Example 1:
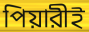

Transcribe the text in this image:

পিয়ারীই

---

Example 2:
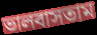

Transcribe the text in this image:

ভালবাসতাম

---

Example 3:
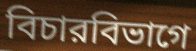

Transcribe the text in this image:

বিচারবিভাগে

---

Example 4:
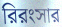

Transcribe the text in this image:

রিরংসার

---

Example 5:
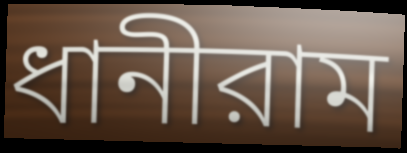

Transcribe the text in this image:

ধানীরাম